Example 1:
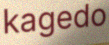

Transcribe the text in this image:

kagedo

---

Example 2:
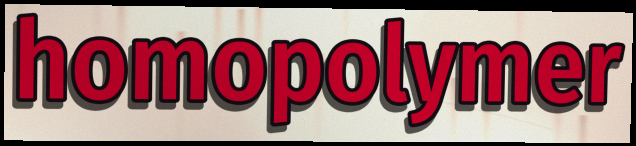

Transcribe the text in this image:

homopolymer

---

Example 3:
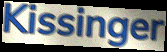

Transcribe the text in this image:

Kissinger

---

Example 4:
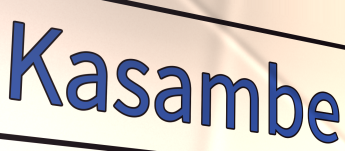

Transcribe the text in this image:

Kasambe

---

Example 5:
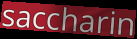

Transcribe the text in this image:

saccharin